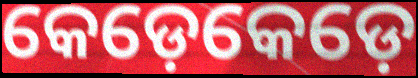
କେଡ଼େକେଡ଼େ